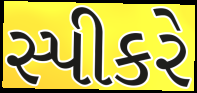
સ્પીકરે